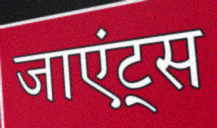
जाएंट्स